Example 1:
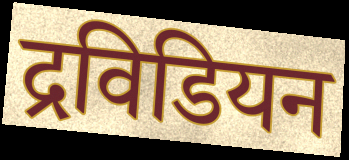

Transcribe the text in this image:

द्रविडियन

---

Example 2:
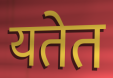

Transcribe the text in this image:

यतेत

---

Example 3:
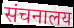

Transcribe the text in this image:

संचनालय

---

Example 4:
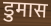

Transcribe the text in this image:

डुमास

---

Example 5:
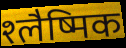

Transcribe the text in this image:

श्लैष्मिक